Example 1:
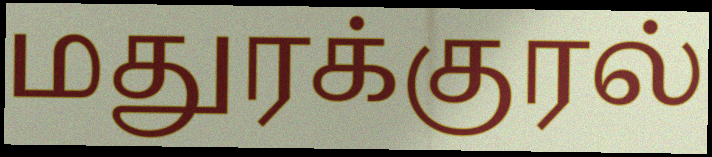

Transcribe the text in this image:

மதுரக்குரல்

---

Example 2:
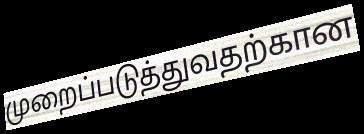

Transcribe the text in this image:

முறைப்படுத்துவதற்கான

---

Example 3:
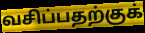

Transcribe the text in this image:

வசிப்பதற்குக்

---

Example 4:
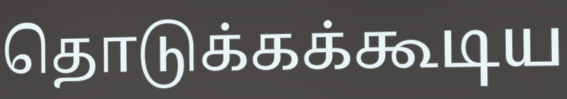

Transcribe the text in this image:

தொடுக்கக்கூடிய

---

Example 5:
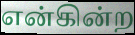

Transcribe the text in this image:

என்கின்ற